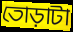
তোড়াটা